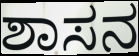
ಶಾಸನ